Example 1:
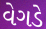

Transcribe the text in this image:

વેગડે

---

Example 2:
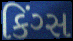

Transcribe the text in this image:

કિંગ્સ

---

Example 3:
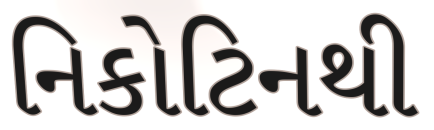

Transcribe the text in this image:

નિકોટિનથી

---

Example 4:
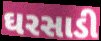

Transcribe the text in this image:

ઘરસાડી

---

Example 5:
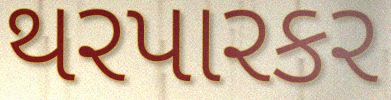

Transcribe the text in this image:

થરપારકર